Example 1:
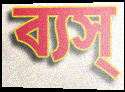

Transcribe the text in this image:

ব্যস্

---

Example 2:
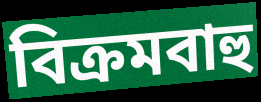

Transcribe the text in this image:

বিক্রমবাহু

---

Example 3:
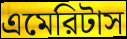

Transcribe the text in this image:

এমেরিটাস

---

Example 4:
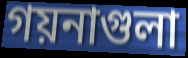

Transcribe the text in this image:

গয়নাগুলা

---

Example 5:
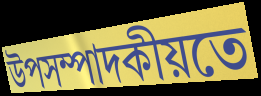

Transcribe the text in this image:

উপসম্পাদকীয়তে